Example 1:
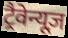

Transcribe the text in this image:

ट्रैवेन्यूज़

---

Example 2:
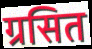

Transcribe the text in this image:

ग्रसित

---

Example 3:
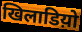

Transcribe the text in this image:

खिलाडिय़ो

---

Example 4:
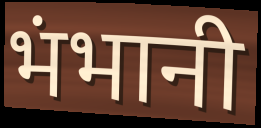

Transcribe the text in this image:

भंभानी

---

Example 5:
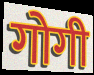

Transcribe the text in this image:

गोगी